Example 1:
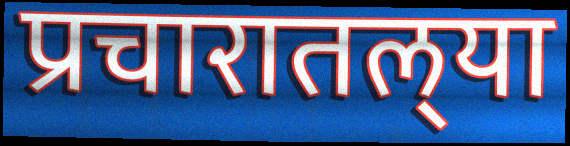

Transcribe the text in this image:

प्रचारातल्या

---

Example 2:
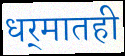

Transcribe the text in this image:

धर्मातही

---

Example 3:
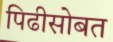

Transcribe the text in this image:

पिढीसोबत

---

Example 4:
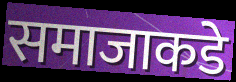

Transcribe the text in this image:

समाजाकडे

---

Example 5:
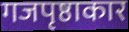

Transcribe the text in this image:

गजपृष्ठाकार